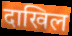
दाखिल